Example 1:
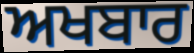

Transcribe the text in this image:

ਅਖਬਾਰ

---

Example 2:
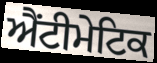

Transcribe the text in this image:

ਐਂਟੀਮੇਟਿਕ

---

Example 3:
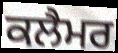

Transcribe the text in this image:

ਕਲੈਮਰ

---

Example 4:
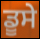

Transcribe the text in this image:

ਡੂਸੇ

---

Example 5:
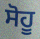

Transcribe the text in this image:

ਸੋਹੂ